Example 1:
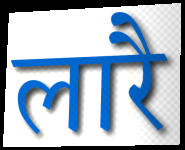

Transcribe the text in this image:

लारै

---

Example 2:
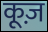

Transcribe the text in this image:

कूज़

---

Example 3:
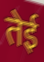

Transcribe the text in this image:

तेई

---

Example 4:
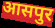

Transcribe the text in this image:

आसपुर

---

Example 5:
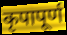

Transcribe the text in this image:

कृपापूर्ण